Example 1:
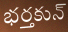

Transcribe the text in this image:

భర్తకున్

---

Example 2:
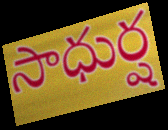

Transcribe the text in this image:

సాధుర్ష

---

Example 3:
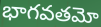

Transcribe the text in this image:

భాగవతమో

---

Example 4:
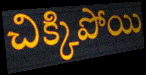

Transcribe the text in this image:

చిక్కిపోయి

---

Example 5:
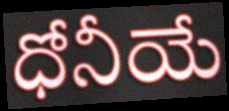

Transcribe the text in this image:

ధోనీయే